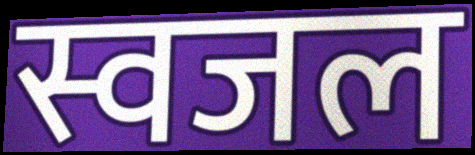
स्वजल